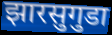
झारसुगुडा